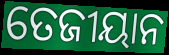
ତେଜୀୟାନ